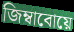
জিম্বাবোয়ে